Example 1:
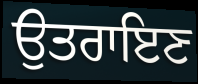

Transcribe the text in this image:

ਉਤਰਾਇਣ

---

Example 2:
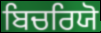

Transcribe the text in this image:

ਬਿਚਰਿਯੋ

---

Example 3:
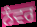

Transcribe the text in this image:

ਨੰਵਰ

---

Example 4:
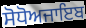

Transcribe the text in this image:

ਸੋਧੋਅਜਾਇਬ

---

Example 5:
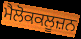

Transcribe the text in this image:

ਮੈਲੋਕਕਲੂਜ਼ਨ